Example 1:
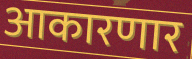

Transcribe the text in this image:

आकारणार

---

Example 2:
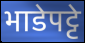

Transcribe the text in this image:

भाडेपट्टे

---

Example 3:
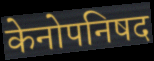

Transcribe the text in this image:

केनोपनिषद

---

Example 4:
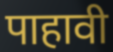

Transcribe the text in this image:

पाहावी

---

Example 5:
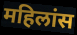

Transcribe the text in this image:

महिलांस